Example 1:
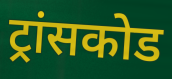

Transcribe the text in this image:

ट्रांसकोड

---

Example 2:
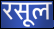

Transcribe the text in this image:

रसूल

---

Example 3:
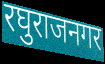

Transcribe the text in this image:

रघुराजनगर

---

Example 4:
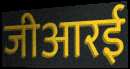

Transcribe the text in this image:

जीआरई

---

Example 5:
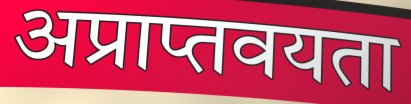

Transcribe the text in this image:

अप्राप्तवयता